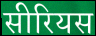
सीरियस